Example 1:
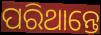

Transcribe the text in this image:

ପରିଥାନ୍ତେ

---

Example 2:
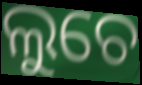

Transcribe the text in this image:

ଲୁଚେ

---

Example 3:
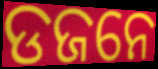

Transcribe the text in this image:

ଡଜନେ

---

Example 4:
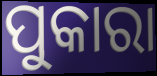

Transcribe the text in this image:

ପୁକାରା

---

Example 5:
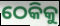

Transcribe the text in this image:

ଠେକିକୁ